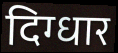
दिग्धार